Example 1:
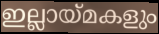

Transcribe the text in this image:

ഇല്ലായ്മകളും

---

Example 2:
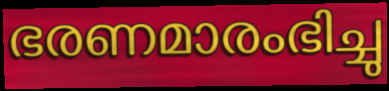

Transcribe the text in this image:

ഭരണമാരംഭിച്ചു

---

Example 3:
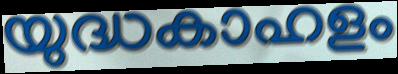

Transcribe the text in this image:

യുദ്ധകാഹളം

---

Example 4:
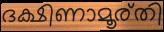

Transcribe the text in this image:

ദക്ഷിണാമൂര്തി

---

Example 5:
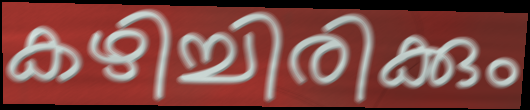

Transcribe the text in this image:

കഴിച്ചിരിക്കും